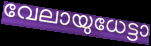
വേലായുധേട്ടാ